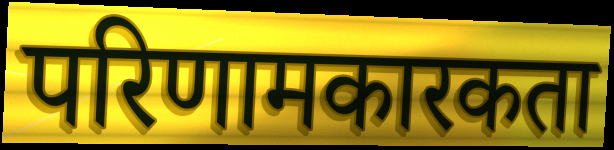
परिणामकारकता